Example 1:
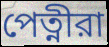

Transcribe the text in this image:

পেত্নীরা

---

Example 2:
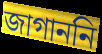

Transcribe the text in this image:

জাগাননি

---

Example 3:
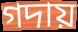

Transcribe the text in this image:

গদায়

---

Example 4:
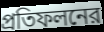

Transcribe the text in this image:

প্রতিফলনের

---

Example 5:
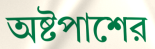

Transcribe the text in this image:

অষ্টপাশের